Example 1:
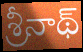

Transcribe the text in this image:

శ్రీనాథ్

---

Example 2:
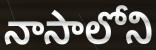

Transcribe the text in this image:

నాసాలోని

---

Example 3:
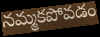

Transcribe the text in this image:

నమ్మకపోవడం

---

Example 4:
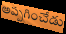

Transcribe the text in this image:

అప్పగించేడు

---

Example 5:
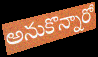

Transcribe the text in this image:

అనుకొన్నారో